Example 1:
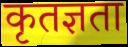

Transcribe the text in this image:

कृतज्ञता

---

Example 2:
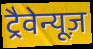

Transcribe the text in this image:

ट्रैवेन्यूज़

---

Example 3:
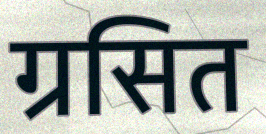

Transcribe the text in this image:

ग्रसित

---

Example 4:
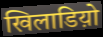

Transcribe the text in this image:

खिलाडिय़ो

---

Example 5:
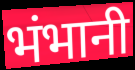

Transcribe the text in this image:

भंभानी